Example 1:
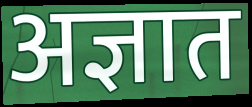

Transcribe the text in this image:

अज्ञात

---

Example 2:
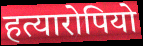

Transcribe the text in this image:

हत्यारोपियो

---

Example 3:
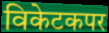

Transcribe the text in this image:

विकेटकपर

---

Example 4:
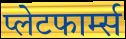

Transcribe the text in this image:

प्लेटफार्म्स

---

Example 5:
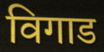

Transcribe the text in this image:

विगाड